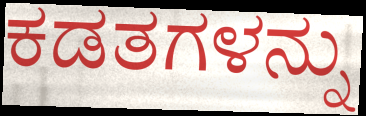
ಕಡತಗಳನ್ನು